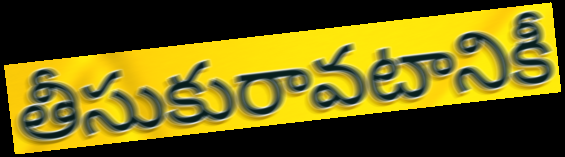
తీసుకురావటానికీ